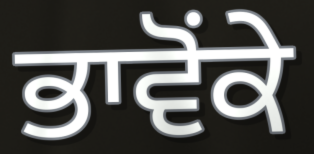
ਭਾਵੋਂਕੇ